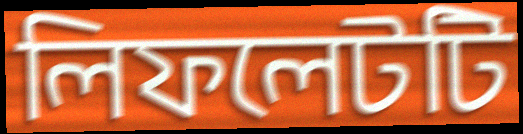
লিফলেটটি